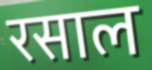
रसाल